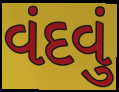
વંદવું